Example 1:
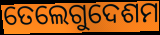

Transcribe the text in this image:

ତେଲେଗୁଦେଶମ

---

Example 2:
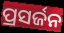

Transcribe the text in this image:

ପ୍ରସର୍ଜନ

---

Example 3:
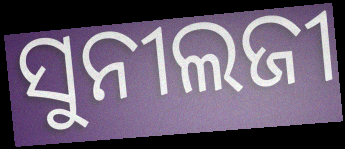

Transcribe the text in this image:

ସୁନୀଲଜୀ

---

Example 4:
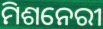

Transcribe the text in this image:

ମିଶନେରୀ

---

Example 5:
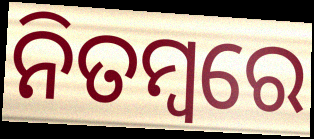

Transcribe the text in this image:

ନିତମ୍ବରେ